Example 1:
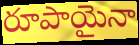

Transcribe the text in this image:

రూపాయైనా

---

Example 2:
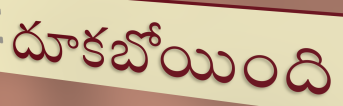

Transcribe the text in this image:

దూకబోయింది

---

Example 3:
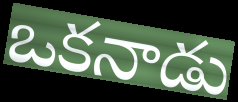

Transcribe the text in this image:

ఒకనాడు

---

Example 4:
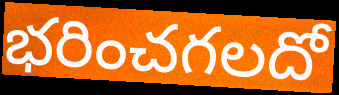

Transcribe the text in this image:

భరించగలదో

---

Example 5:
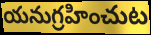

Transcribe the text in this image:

యనుగ్రహించుట